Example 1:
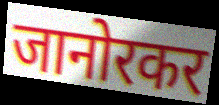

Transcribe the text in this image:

जानोरकर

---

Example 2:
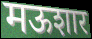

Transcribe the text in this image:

मऊशार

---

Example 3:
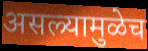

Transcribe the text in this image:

असल्यामुळेच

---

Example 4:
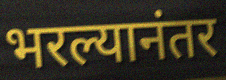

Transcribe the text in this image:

भरल्यानंतर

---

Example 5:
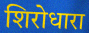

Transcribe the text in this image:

शिरोधारा